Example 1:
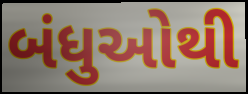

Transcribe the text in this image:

બંધુઓથી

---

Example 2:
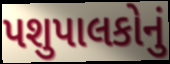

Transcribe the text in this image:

પશુપાલકોનું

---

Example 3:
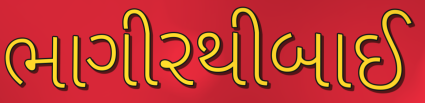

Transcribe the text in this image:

ભાગીરથીબાઈ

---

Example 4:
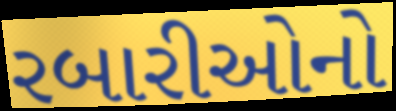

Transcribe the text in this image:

રબારીઓનો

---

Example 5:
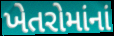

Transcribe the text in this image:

ખેતરોમાંનાં